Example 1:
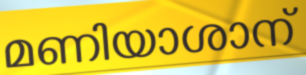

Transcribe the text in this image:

മണിയാശാന്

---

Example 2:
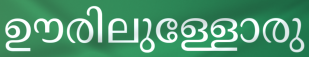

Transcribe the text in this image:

ഊരിലുള്ളോരു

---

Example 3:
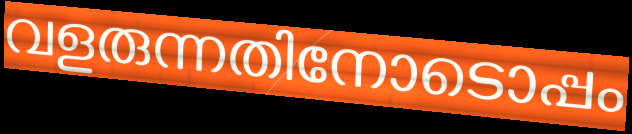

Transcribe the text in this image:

വളരുന്നതിനോടൊപ്പം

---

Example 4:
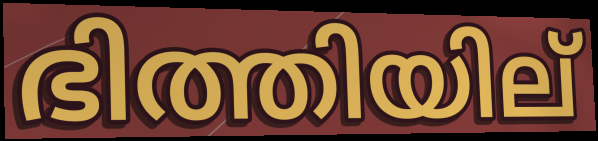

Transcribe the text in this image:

ഭിത്തിയില്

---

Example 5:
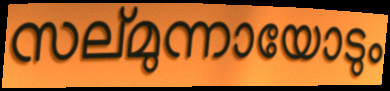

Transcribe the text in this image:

സല്മുന്നായോടും